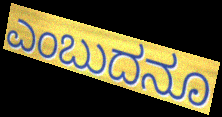
ಎಂಬುದನೂ